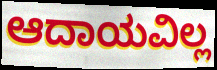
ಆದಾಯವಿಲ್ಲ